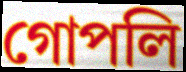
গোপলি